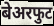
बेअरफुट